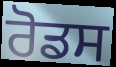
ਰੋਡਸ